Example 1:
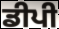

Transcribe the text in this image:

ਡੀਪੀ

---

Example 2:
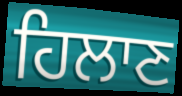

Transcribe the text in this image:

ਹਿਲਾਣ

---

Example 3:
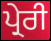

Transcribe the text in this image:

ਪ੍ਰੇਰੀ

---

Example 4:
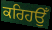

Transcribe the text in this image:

ਕਰਿਹਉਁ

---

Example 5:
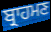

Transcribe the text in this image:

ਬ੍ਰਾਹਮਣ